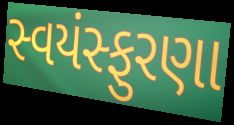
સ્વયંસ્ફુરણા